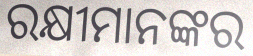
ରକ୍ଷୀମାନଙ୍କର